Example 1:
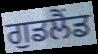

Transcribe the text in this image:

ਗੁਡਲੈਂਡ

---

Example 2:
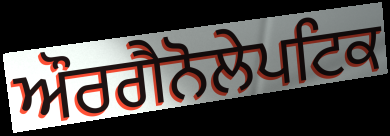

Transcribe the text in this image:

ਔਰਗੈਨੋਲੇਪਟਿਕ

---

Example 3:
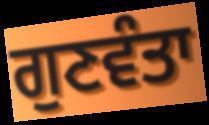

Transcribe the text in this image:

ਗੁਣਵੰਤਾ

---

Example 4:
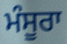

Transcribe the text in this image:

ਮੰਸੂਰਾ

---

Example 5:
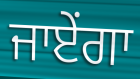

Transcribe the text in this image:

ਜਾਏਂਗਾ